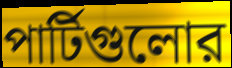
পার্টিগুলোর